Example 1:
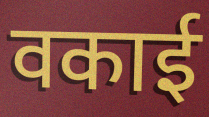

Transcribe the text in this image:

वकाई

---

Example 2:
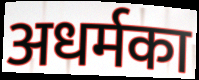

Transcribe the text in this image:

अधर्मका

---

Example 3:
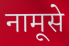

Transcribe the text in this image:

नामूसे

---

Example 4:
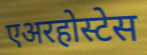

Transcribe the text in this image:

एअरहोस्टेस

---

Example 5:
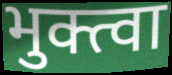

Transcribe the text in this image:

भुक्त्वा